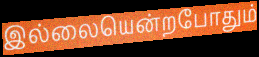
இல்லையென்றபோதும்